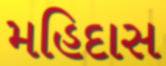
મહિદાસ